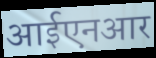
आईएनआर